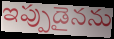
ఇప్పుడైనను